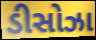
ડીસોઝા